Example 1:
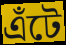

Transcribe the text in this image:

এঁটে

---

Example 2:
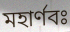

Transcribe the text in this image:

মহার্ণবঃ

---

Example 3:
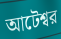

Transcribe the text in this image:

আটেশ্বর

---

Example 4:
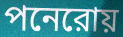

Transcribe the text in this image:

পনেরোয়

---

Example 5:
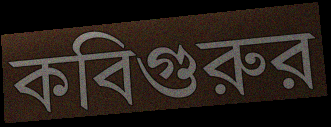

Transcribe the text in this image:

কবিগুরুর